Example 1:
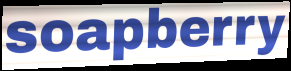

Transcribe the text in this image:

soapberry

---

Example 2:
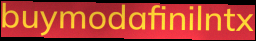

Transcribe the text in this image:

buymodafinilntx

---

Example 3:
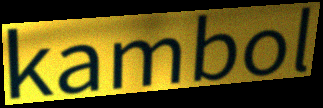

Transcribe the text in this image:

kambol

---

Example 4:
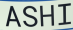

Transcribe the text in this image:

ASHI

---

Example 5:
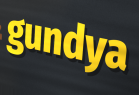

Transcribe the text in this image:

gundya